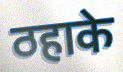
ठहाके